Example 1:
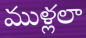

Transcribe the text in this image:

ముళ్లలా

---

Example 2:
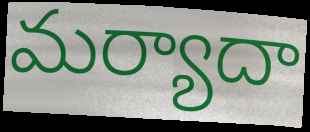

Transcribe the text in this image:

మర్యాదా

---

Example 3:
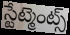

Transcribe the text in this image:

స్టేట్మెంట్స్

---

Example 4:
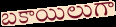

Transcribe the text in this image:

బకాయిలుగా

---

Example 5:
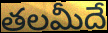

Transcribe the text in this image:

తలమీదే